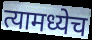
त्यामध्येच